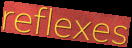
reflexes